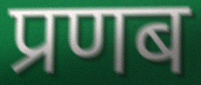
प्रणब